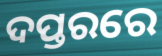
ଦପ୍ତରରେ